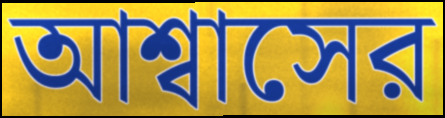
আশ্বাসের